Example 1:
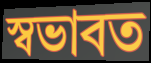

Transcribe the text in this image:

স্বভাবত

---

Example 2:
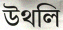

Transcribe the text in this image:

উথলি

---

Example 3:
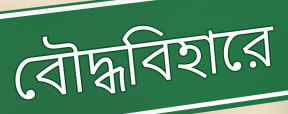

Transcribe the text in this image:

বৌদ্ধবিহারে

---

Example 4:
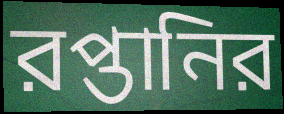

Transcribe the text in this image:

রপ্তানির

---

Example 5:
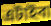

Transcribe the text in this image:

এটাইবা